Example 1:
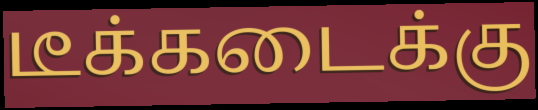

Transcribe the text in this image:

டீக்கடைக்கு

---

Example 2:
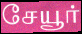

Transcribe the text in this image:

சேயூர்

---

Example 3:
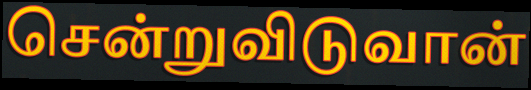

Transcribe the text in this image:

சென்றுவிடுவான்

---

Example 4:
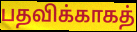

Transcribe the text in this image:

பதவிக்காகத்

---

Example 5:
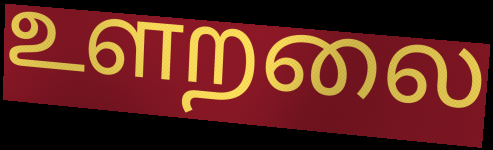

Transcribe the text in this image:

உளறலை